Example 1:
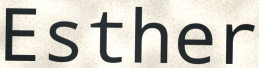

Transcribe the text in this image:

Esther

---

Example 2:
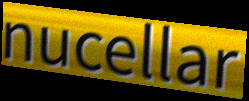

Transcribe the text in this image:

nucellar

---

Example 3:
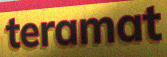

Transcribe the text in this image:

teramat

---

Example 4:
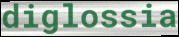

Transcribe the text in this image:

diglossia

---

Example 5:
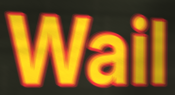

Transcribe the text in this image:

Wail